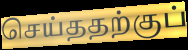
செய்ததற்குப்